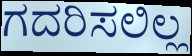
ಗದರಿಸಲಿಲ್ಲ